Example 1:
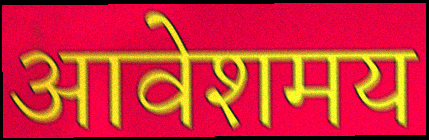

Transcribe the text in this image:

आवेशमय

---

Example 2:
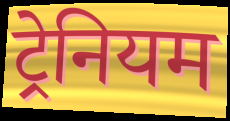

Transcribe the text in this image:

ट्रेनियम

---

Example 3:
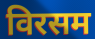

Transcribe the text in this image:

विरसम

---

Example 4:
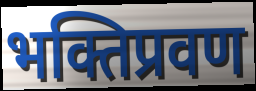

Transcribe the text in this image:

भक्तिप्रवण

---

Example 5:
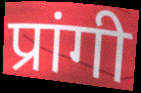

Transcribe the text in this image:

प्रांगी